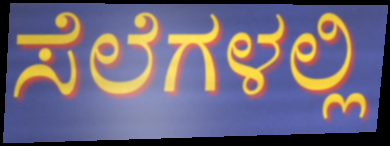
ಸೆಲೆಗಳಲ್ಲಿ